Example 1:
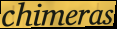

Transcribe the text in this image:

chimeras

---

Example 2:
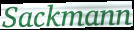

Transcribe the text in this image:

Sackmann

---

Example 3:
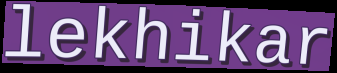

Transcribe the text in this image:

lekhikar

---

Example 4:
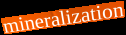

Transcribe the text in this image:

mineralization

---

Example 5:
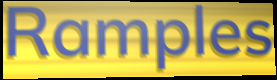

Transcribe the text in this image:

Ramples